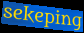
sekeping